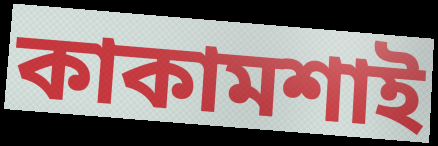
কাকামশাই